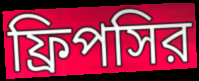
ফ্রিপসির